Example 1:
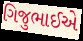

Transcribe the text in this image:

ગિજુભાઈએ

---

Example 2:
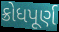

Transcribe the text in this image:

ક્રોધપૂર્ણ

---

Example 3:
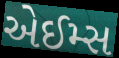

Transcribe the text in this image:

એઈમ્સ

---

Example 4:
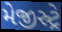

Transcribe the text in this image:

મેજીસ્ર્ટ્રે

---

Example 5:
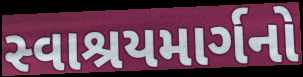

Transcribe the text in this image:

સ્વાશ્રયમાર્ગનો